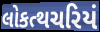
લોકત્થચરિયં